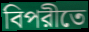
বিপরীতে